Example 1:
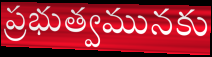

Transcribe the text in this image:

ప్రభుత్వమునకు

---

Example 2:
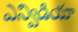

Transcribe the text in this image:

ఎన్విడియా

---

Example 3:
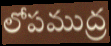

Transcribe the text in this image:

లోపముద్ర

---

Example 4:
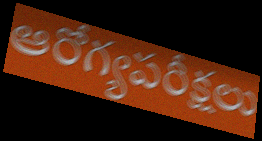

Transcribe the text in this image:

ఆరోగ్యపరీక్షలు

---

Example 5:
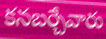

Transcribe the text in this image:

కనబర్చేవారు